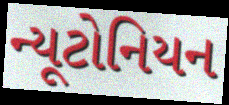
ન્યૂટોનિયન